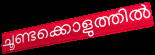
ചൂണ്ടക്കൊളുത്തിൽ